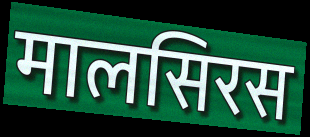
मालसिरस